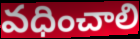
వధించాలి